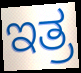
ಇತ್ರ